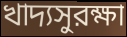
খাদ্যসুরক্ষা